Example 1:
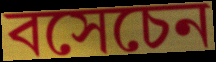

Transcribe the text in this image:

বসেচেন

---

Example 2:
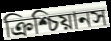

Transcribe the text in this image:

ক্রিশ্চিয়ানস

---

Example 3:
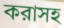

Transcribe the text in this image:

করাসহ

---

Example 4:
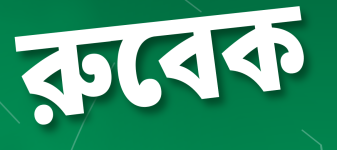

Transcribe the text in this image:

রুবেক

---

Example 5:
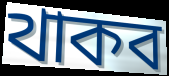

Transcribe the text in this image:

থাকব